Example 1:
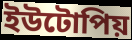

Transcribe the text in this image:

ইউটোপিয়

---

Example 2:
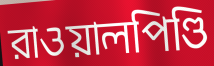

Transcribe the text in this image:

রাওয়ালপিণ্ডি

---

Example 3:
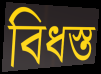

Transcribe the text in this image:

বিধস্ত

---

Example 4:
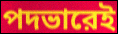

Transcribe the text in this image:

পদভারেই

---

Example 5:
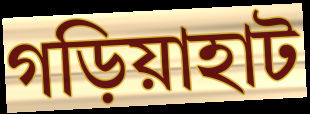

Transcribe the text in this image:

গড়িয়াহাট